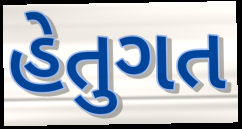
હેતુગત